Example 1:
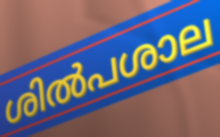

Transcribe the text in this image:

ശിൽപശാല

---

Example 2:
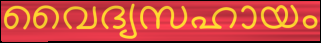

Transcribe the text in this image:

വൈദ്യസഹായം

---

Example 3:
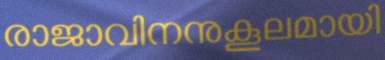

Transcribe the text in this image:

രാജാവിനനുകൂലമായി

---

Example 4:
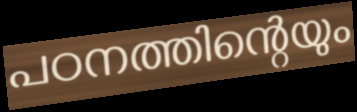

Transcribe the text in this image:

പഠനത്തിന്റെയും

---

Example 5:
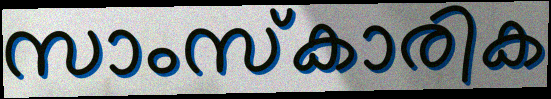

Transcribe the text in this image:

സാംസ്കാരിക